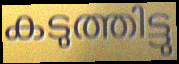
കടുത്തിട്ടു